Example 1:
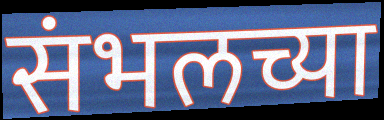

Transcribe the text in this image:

संभलच्या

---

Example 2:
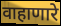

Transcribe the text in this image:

वाहाणारे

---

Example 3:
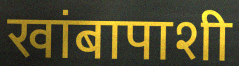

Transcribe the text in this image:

खांबापाशी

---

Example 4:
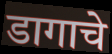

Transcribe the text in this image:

डागाचे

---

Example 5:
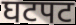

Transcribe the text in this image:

घटपट